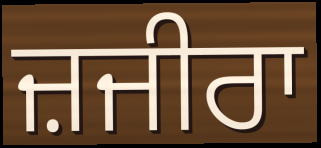
ਜ਼ਜੀਰਾ